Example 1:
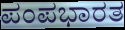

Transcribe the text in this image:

ಪಂಪಭಾರತ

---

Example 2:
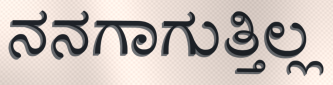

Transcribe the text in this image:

ನನಗಾಗುತ್ತಿಲ್ಲ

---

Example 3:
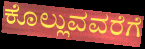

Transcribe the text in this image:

ಕೊಲ್ಲುವವರೆಗೆ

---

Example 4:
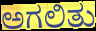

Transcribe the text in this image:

ಅಗಲಿತು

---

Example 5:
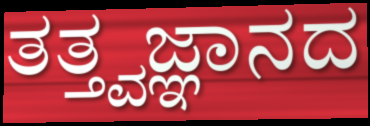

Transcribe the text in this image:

ತತ್ತ್ವಜ್ಞಾನದ